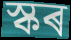
স্কৰ